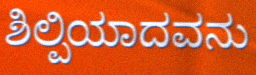
ಶಿಲ್ಪಿಯಾದವನು